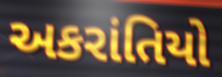
અકરાંતિયો